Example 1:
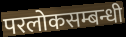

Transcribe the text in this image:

परलोकसम्बन्धी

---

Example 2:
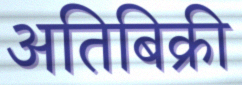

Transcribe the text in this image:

अतिबिक्री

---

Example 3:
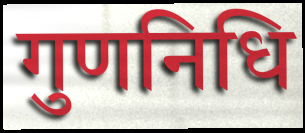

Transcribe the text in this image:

गुणनिधि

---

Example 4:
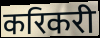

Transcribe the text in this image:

करिकरी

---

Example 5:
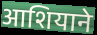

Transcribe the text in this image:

आशियाने